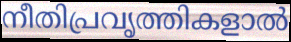
നീതിപ്രവൃത്തികളാൽ